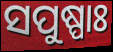
ସପୁଷ୍ପାଃ